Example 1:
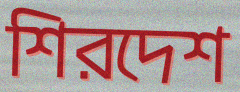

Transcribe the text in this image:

শিরদেশ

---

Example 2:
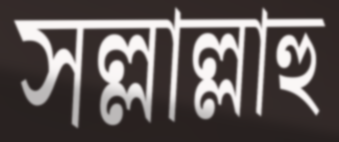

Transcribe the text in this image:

সল্লাল্লাহু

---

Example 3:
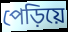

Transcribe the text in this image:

পেড়িয়ে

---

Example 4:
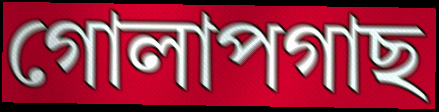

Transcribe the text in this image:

গোলাপগাছ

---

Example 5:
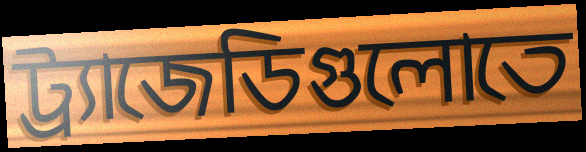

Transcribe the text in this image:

ট্র্যাজেডিগুলোতে